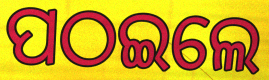
ପଠଇଲେ